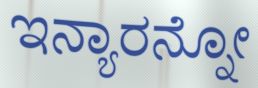
ಇನ್ಯಾರನ್ನೋ